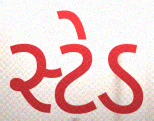
સ્ટેડ